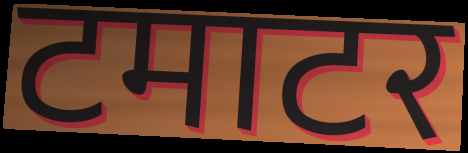
टमाटर